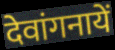
देवांगनायें